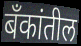
बॅंकांतील